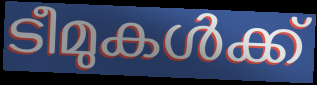
ടീമുകൾക്ക്